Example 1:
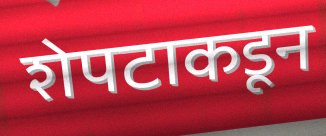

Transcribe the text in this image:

शेपटाकडून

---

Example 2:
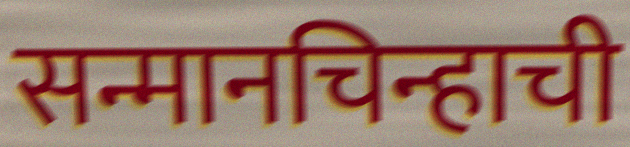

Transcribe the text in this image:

सन्मानचिन्हाची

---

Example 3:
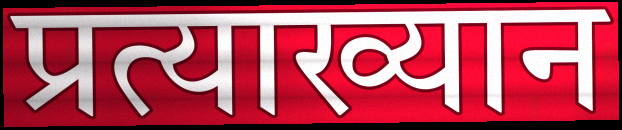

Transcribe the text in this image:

प्रत्याख्यान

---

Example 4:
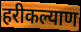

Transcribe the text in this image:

हरीकल्याण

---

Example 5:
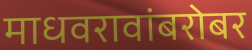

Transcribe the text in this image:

माधवरावांबरोबर